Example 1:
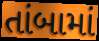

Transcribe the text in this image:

તાંબામાં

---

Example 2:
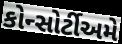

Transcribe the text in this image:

કોન્સોર્ટીઅમે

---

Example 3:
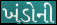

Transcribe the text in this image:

ખંડોની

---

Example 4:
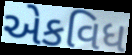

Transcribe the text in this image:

એકવિધ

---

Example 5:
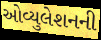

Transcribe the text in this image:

ઓવ્યુલેશનની